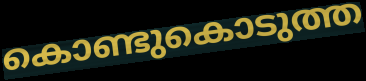
കൊണ്ടുകൊടുത്ത